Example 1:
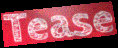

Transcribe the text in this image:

Tease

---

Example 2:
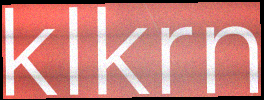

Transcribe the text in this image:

klkrn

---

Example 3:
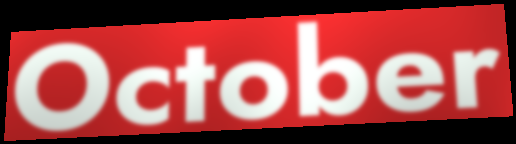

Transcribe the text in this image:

October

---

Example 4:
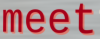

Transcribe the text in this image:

meet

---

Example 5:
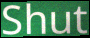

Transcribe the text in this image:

Shut